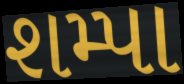
શમ્પા